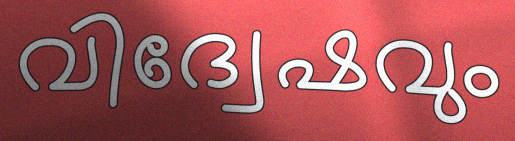
വിദ്വേഷവും